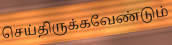
செய்திருக்கவேண்டும்